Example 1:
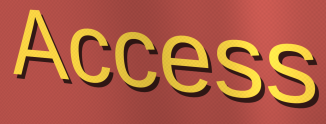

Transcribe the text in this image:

Access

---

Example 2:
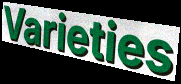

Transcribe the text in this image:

Varieties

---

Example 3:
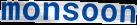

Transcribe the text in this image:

monsoon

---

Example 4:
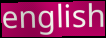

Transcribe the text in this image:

english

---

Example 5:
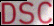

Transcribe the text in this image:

DSC